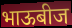
भाऊबीज